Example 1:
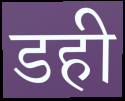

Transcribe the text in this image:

डही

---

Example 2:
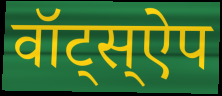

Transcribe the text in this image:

वॉट्स्ऐप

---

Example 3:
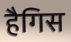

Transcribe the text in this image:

हैगिस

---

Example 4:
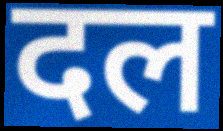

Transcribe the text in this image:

दल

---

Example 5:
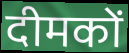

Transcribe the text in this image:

दीमकों